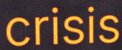
crisis